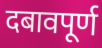
दबावपूर्ण